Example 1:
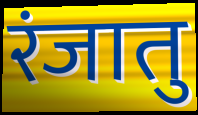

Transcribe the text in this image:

रंजातु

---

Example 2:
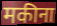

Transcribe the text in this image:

मकीना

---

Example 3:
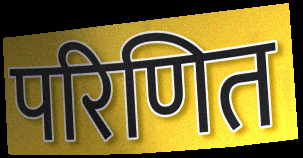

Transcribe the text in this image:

परिणित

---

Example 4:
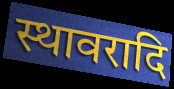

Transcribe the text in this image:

स्थावरादि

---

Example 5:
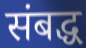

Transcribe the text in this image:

संबद्ध